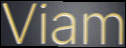
Viam